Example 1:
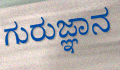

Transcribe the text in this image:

ಗುರುಜ್ಞಾನ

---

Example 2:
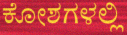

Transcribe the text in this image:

ಕೋಶಗಳಲ್ಲಿ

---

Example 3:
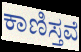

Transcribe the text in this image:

ಕಾಣಿಸ್ತವೆ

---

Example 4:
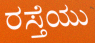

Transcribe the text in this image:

ರಸ್ತೆಯು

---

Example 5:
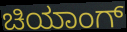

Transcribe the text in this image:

ಚಿಯಾಂಗ್